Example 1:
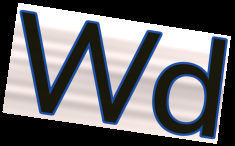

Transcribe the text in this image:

Wd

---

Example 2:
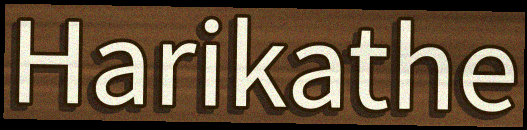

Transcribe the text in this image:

Harikathe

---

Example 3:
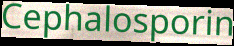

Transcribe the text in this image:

Cephalosporin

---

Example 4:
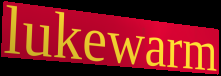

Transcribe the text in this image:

lukewarm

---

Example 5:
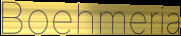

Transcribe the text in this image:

Boehmeria